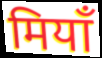
मियाँ